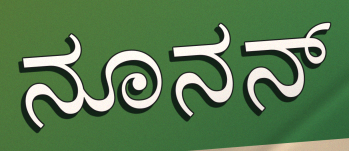
ನೂನನ್